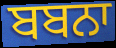
ਬਬਨਾ